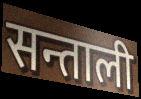
सन्ताली